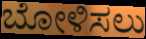
ಬೋಳಿಸಲು